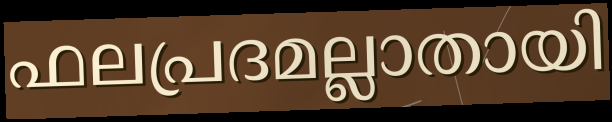
ഫലപ്രദമല്ലാതായി